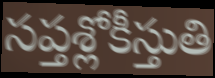
సప్తశ్లోకీస్తుతి